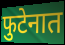
फुटेनात